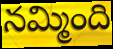
నమ్మింది